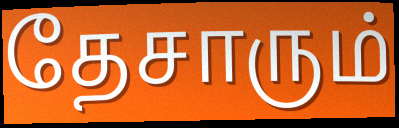
தேசாரும்